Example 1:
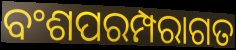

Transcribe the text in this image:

ବଂଶପରମ୍ପରାଗତ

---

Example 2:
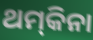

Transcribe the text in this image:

ଥମ୍‍କିନା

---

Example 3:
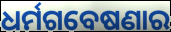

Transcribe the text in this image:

ଧର୍ମଗବେଷଣାର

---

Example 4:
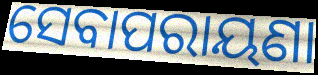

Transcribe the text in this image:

ସେବାପରାୟଣା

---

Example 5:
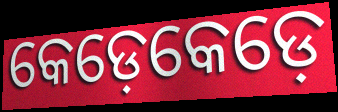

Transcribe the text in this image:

କେଡ଼େକେଡ଼େ